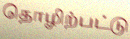
தொழிற்பட்டு